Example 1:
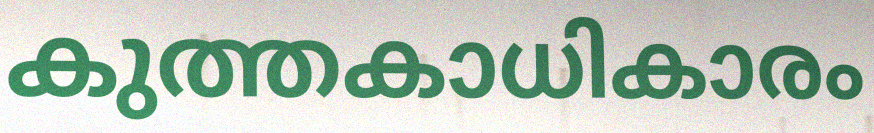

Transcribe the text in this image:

കുത്തകാധികാരം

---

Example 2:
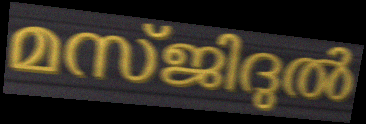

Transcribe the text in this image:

മസ്ജിദുൽ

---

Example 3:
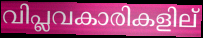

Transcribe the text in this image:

വിപ്ലവകാരികളില്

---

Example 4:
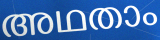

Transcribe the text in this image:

അഥതാം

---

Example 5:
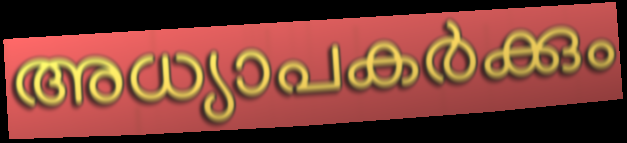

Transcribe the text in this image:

അധ്യാപകർക്കും